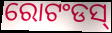
ରୋଟଂଡସ୍